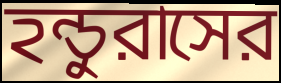
হন্ডুরাসের